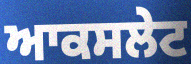
ਆਕਸਲੇਟ